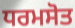
ਧਰਮਸੋਤ